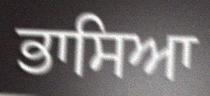
ਭਾਸਿਆ